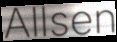
Allsen